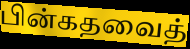
பின்கதவைத்